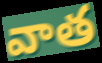
వాత